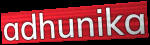
adhunika